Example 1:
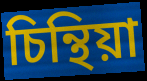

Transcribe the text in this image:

চিন্থিয়া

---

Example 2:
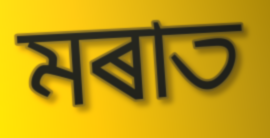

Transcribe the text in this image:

মৰাত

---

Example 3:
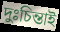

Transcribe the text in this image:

দুঃচিন্তাই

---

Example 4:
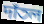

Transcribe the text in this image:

দাঁতল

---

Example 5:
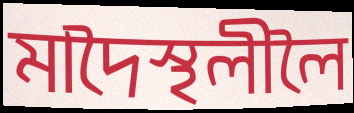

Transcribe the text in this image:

মাদৈস্থলীলৈ